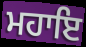
ਮਹਾਇ